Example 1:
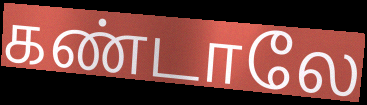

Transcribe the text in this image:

கண்டாலே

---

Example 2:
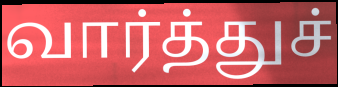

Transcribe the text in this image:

வார்த்துச்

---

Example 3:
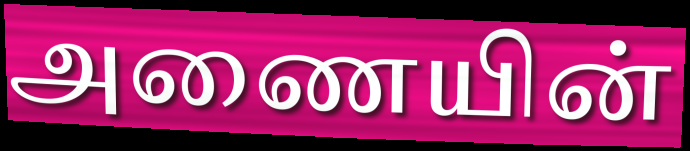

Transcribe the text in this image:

அணையின்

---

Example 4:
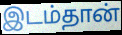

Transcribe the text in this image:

இடம்தான்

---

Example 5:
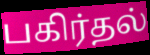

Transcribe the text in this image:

பகிர்தல்